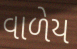
વાળેય